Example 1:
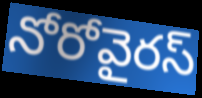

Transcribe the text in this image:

నోరోవైరస్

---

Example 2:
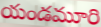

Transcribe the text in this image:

యండమూరి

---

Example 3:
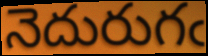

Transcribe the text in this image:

నెదురుగఁ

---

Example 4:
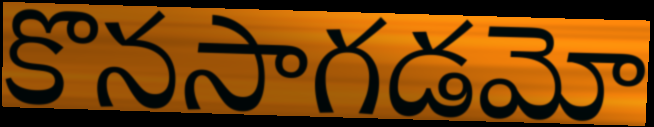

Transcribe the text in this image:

కొనసాగడమో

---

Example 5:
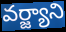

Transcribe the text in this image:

వర్జ్యాని